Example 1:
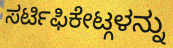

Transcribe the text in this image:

ಸರ್ಟಿಫಿಕೇಟ್ಗಳನ್ನು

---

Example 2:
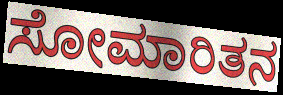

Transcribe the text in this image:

ಸೋಮಾರಿತನ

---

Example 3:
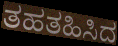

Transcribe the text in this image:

ತಹತಹಿಸಿದ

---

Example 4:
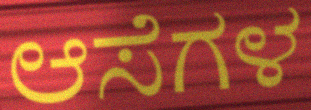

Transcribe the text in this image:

ಆಸೆಗಳ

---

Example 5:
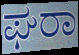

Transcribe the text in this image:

ಘರಾ